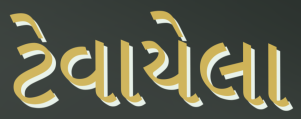
ટેવાયેલા